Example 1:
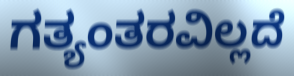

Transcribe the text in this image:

ಗತ್ಯಂತರವಿಲ್ಲದೆ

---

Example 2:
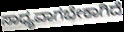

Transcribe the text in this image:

ಸಾಧ್ಯವಾಗಬೇಕಾಗಿದೆ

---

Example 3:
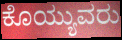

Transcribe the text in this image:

ಕೊಯ್ಯುವರು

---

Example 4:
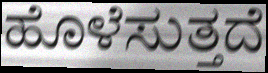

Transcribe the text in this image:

ಹೊಳೆಸುತ್ತದೆ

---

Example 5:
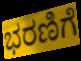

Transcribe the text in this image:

ಭರಣಿಗೆ